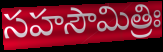
సహసౌమిత్రిః